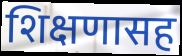
शिक्षणासह